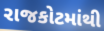
રાજકોટમાંથી